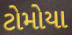
ટોમોયા